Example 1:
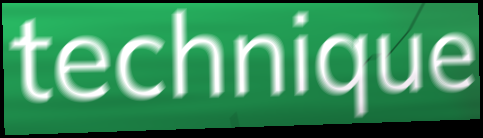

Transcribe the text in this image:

technique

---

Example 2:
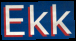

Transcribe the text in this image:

Ekk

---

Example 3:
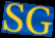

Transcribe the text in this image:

SG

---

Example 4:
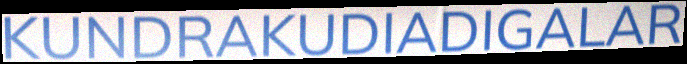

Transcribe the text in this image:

KUNDRAKUDIADIGALAR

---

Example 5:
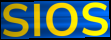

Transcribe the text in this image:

SIOS